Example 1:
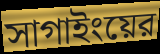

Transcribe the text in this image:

সাগাইংয়ের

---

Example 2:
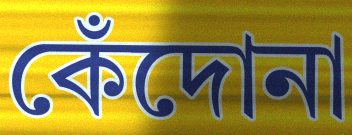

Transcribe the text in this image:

কেঁদোনা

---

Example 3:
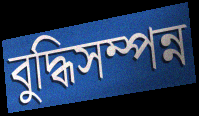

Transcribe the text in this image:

বুদ্ধিসম্পন্ন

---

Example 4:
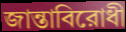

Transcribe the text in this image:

জান্তাবিরোধী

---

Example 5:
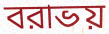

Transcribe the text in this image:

বরাভয়